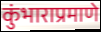
कुंभाराप्रमाणे